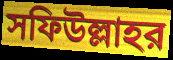
সফিউল্লাহর